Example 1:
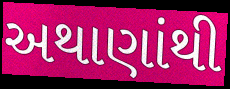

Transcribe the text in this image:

અથાણાંથી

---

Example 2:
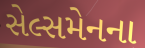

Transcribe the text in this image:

સેલ્સમેનના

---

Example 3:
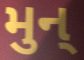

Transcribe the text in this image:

મુન્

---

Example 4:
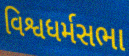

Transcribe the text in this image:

વિશ્વધર્મસભા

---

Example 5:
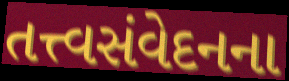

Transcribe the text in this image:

તત્ત્વસંવેદનના